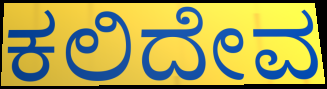
ಕಲಿದೇವ